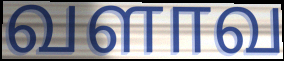
வளாவ